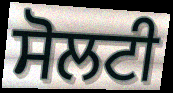
ਸੋਲਟੀ